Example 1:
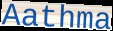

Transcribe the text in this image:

Aathma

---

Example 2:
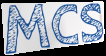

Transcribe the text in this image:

MCS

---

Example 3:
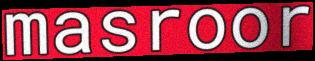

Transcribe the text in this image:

masroor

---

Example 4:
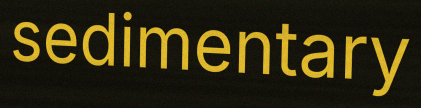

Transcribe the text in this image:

sedimentary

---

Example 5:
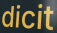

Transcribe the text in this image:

dicit